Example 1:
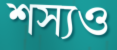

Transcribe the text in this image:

শস্যও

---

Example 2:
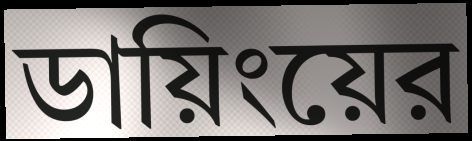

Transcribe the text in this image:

ডায়িংয়ের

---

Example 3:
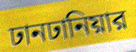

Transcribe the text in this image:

ঢানঢানিয়ার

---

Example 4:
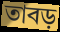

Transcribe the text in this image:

তাবড়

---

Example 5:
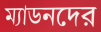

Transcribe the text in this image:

ম্যাডনদের